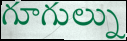
గూగుల్ను